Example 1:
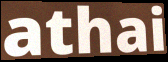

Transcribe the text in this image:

athai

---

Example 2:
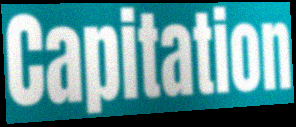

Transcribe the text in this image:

Capitation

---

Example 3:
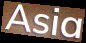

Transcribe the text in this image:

Asia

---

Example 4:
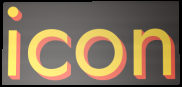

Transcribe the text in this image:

icon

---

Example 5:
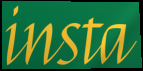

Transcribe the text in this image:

insta